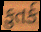
કુતર્ક